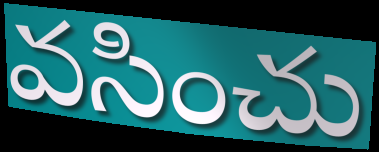
వసించు